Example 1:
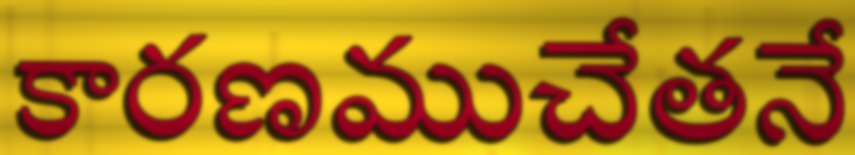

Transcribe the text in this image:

కారణముచేతనే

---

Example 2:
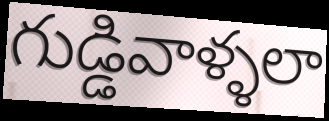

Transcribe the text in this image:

గుడ్డివాళ్ళలా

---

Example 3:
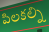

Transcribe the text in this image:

పిలకల్ని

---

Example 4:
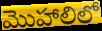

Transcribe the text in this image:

మొహాలిలో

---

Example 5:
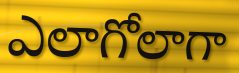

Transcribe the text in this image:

ఎలాగోలాగా